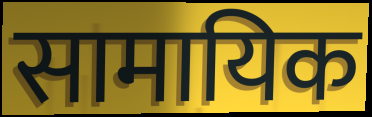
सामायिक